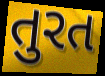
તુરત